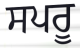
ਸਪਰੂ